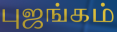
புஜங்கம்